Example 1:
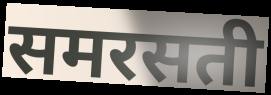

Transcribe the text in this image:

समरसती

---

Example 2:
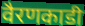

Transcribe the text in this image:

वैरणकाडी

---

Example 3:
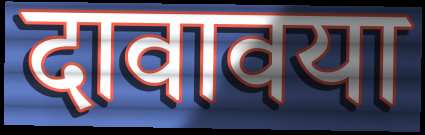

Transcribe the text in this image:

दावावया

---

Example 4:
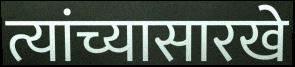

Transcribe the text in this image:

त्यांच्यासारखे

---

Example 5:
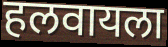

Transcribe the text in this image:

हलवायला